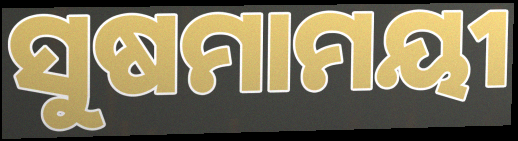
ସୁଷମାମୟୀ